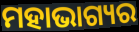
ମହାଭାଗ୍ୟର